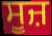
ਸੂਜ਼